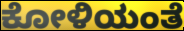
ಕೋಳಿಯಂತೆ